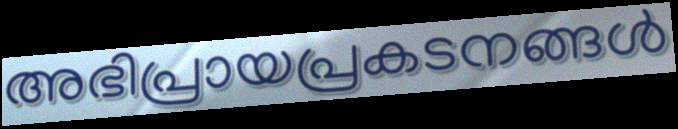
അഭിപ്രായപ്രകടനങ്ങൾ